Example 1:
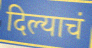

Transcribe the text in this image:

दिल्याचं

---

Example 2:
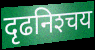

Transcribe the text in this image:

दृढनिश्‍चय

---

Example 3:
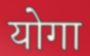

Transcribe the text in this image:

योगा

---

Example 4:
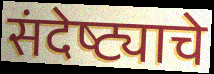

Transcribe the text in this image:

संदेष्ट्याचे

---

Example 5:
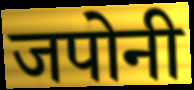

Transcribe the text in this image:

जपोनी